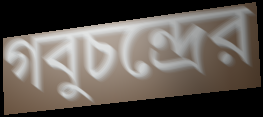
গবুচন্দ্রের